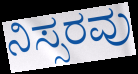
ನಿಸ್ಸರವು